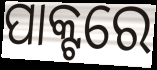
ପାକ୍ଟରେ